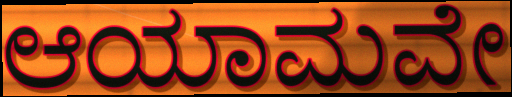
ಆಯಾಮವೇ